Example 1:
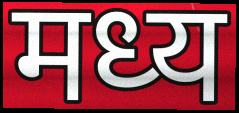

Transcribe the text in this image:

मध्‍य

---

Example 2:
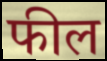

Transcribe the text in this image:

फील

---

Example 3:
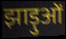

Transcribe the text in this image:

झाड़ुओं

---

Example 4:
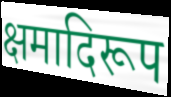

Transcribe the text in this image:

क्षमादिरूप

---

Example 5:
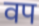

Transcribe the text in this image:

वप